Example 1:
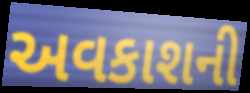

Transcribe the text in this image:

અવકાશની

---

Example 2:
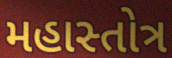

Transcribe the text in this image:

મહાસ્તોત્ર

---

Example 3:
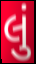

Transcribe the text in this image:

લું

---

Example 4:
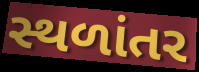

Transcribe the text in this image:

સ્થળાંતર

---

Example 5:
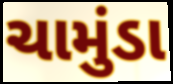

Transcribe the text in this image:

ચામુંડા